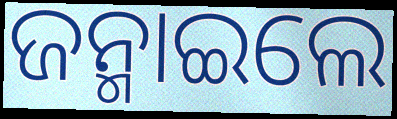
ଜନ୍ମାଇଲେ